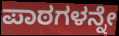
ಪಾಠಗಳನ್ನೇ